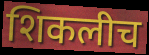
शिकलीच